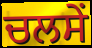
ਚਲਸੇਂ